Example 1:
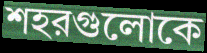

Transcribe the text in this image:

শহরগুলোকে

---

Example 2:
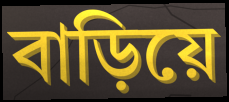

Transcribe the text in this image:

বাড়িয়ে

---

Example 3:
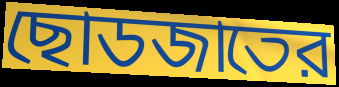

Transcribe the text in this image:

ছোডজাতের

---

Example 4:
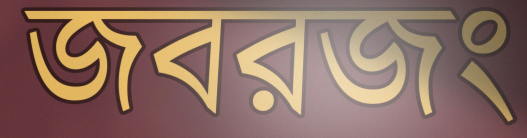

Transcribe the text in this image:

জবরজং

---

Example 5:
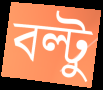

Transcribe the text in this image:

বল্টু